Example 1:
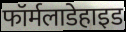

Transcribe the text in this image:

फॉर्मलाडेहाइड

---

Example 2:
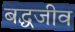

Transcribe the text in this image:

बद्धजीव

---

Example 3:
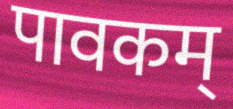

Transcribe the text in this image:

पावकम्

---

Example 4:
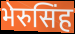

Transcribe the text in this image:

भेरुसिंह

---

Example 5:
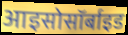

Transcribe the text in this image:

आइसोसॉर्बाइड